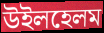
উইলহেলম